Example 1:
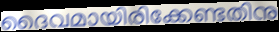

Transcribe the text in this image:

ദൈവമായിരിക്കേണ്ടതിനു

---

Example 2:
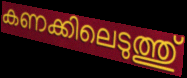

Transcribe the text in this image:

കണക്കിലെടുത്തു്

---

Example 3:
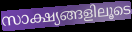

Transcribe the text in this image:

സാക്ഷ്യങ്ങളിലൂടെ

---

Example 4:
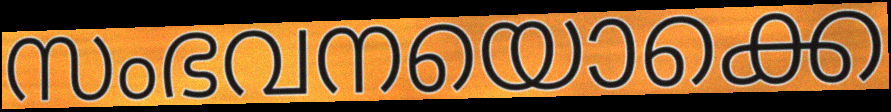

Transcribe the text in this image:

സംഭവനയൊക്കെ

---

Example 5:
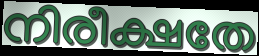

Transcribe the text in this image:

നിരീക്ഷതേ